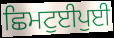
ਛਿਮਟੁਈਪੁਈ